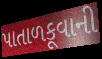
પાતાળકૂવાની